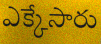
ఎక్కేసారు